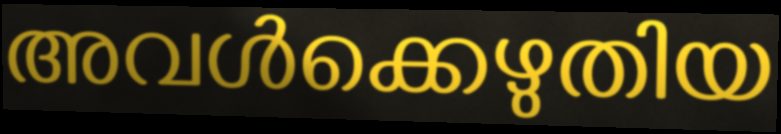
അവൾക്കെഴുതിയ